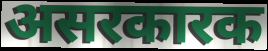
असरकारक